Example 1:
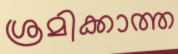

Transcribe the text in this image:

ശ്രമിക്കാത്ത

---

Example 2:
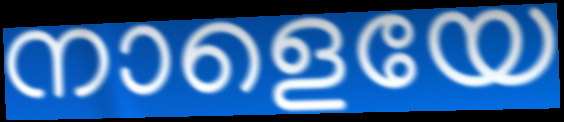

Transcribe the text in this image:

നാളെയേ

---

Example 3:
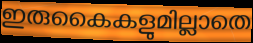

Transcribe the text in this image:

ഇരുകൈകളുമില്ലാതെ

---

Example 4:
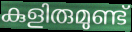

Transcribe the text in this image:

കുളിരുമുണ്ട്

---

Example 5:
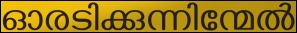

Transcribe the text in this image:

ഓരടിക്കുന്നിന്മേൽ